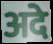
अदे